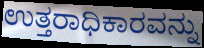
ಉತ್ತರಾಧಿಕಾರವನ್ನು